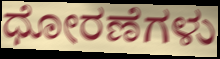
ಧೋರಣೆಗಳು